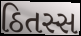
ઠિતસ્સ